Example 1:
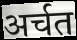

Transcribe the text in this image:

अर्चत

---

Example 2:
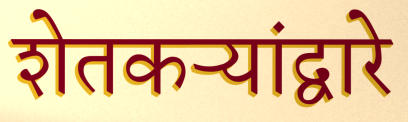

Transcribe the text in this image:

शेतकऱ्यांद्वारे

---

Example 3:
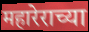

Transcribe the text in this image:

महारेराच्या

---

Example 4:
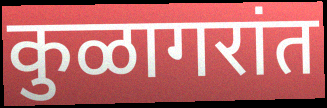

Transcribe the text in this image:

कुळागरांत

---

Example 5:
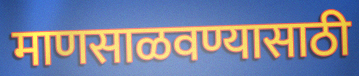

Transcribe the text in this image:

माणसाळवण्यासाठी